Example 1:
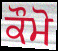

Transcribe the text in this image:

ਕੌਮੋ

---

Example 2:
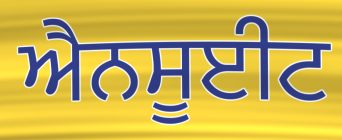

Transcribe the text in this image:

ਐਨਸੂਈਟ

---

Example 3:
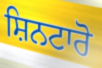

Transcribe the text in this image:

ਸ਼ਿਨਟਾਰੋ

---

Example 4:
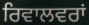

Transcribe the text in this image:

ਰਿਵਾਲਵਰਾਂ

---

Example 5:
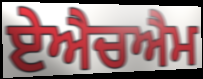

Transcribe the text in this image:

ਏਐਚਐਮ